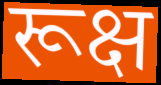
रूक्ष